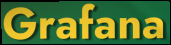
Grafana